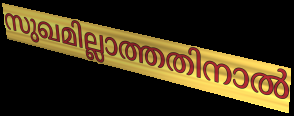
സുഖമില്ലാത്തതിനാൽ